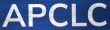
APCLC